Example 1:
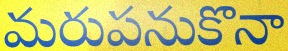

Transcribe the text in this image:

మరుపనుకొనా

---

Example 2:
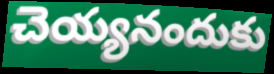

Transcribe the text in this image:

చెయ్యనందుకు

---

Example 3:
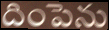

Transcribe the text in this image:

దింపెను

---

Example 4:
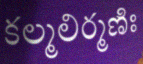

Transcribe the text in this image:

కల్మలిర్మణిః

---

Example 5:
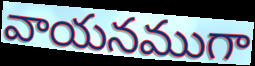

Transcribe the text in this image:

వాయనముగా